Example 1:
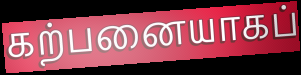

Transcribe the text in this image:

கற்பனையாகப்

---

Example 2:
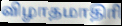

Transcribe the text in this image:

விழாதமாதிரி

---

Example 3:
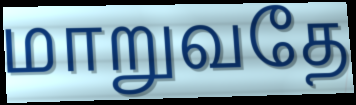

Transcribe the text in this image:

மாறுவதே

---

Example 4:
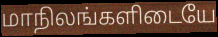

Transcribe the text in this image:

மாநிலங்களிடையே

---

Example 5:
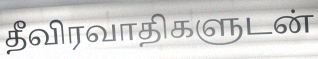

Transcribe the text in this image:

தீவிரவாதிகளுடன்